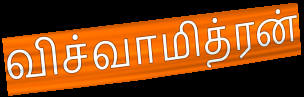
விச்வாமித்ரன்